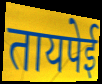
तायपेई